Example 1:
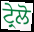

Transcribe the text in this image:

ਟ੍ਰੇਲੋ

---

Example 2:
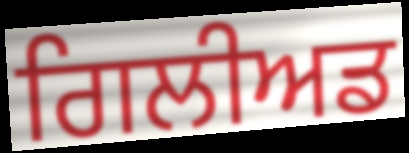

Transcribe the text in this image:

ਗਿਲੀਅਡ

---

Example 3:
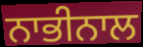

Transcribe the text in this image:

ਨਾਭੀਨਾਲ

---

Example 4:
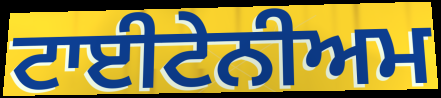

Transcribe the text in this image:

ਟਾਈਟੇਨੀਅਮ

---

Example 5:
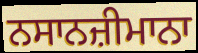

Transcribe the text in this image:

ਨਸਾਨਜ਼ੀਮਾਨਾ